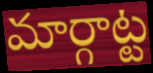
మార్గాట్ట